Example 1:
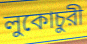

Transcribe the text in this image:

লুকোচুরী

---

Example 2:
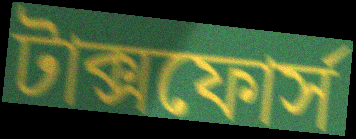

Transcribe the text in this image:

টাক্সফোর্স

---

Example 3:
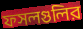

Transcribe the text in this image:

ফসলগুলির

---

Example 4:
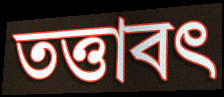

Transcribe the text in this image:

তত্তাবৎ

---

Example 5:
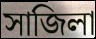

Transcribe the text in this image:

সাজিলা